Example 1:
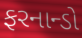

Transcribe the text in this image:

ફરનાન્ડો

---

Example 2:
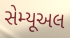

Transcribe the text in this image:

સેમ્યૂઅલ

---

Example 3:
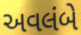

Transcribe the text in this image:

અવલંબે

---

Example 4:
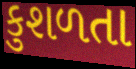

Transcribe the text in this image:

કુશળતા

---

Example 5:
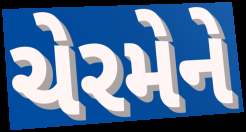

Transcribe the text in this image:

ચેરમેને